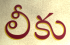
లీకు